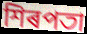
শিৰপতা